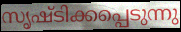
സൃഷ്ടിക്കപ്പെടുന്നു